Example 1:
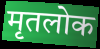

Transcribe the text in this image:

मृतलोक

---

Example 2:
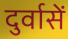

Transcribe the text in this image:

दुर्वासें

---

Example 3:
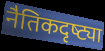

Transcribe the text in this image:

नैतिकदृष्ट्या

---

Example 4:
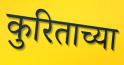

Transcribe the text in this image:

कुरिताच्या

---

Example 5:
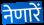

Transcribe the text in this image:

नेणारें